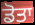
ਡੋਤਾ